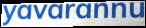
yavarannu